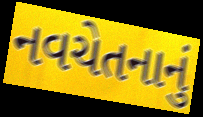
નવચેતનાનું